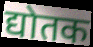
द्योतक